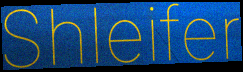
Shleifer